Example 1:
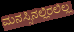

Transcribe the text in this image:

ಮನಸ್ಸಿನಲ್ಲಿರಲಿಲ್ಲ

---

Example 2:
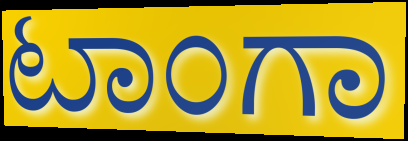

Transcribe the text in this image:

ಟಾಂಗಾ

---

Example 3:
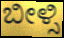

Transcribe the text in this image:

ಬೀಳ್ಸಿ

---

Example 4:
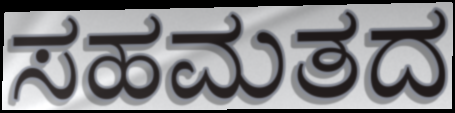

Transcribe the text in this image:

ಸಹಮತದ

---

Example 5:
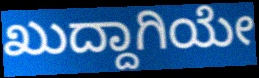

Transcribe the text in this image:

ಖುದ್ದಾಗಿಯೇ